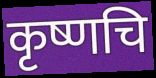
कृष्णचि